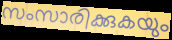
സംസാരിക്കുകയും